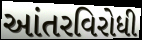
આંતરવિરોધી